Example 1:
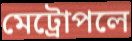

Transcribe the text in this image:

মেট্রোপলে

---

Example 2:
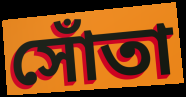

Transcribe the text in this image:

সোঁতা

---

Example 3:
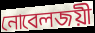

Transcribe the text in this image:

নোবেলজয়ী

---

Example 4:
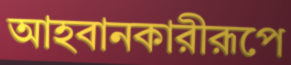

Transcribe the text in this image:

আহবানকারীরূপে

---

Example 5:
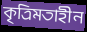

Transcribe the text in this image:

কৃত্রিমতাহীন